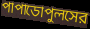
পাপাডোপুলসের